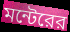
মন্টেরের